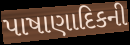
પાષાણાદિકની